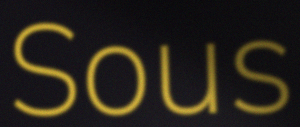
Sous